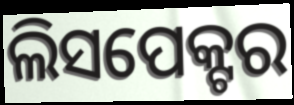
ଲିସପେକ୍ଟର